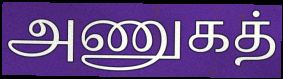
அணுகத்